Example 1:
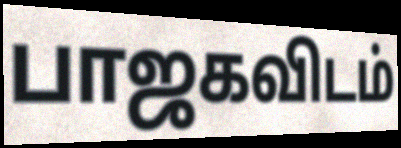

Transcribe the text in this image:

பாஜகவிடம்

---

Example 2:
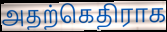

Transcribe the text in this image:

அதற்கெதிராக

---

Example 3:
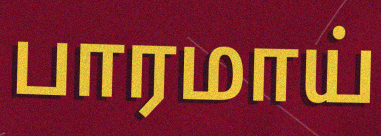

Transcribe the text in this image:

பாரமாய்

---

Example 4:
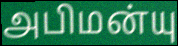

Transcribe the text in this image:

அபிமன்யு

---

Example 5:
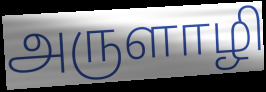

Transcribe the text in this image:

அருளாழி